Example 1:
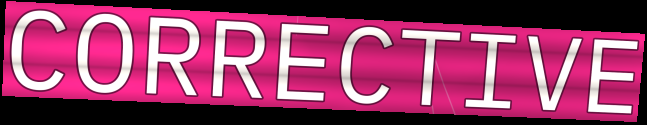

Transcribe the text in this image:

CORRECTIVE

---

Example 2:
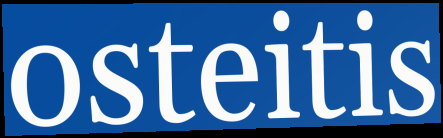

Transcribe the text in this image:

osteitis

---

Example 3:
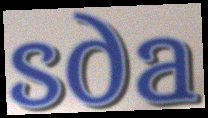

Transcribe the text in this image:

sda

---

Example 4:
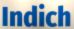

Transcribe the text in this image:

Indich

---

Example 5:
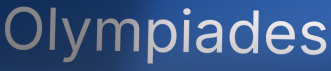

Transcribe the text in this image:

Olympiades